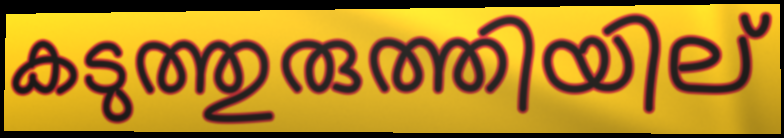
കടുത്തുരുത്തിയില്